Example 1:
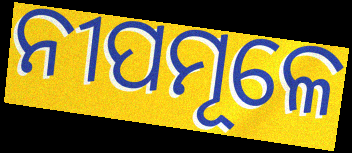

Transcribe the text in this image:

ନୀପମୂଳେ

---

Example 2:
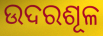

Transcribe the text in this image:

ଉଦରଶୂଳ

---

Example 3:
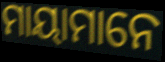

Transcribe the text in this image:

ମାୟାମାନେ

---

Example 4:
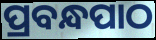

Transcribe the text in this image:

ପ୍ରବନ୍ଧପାଠ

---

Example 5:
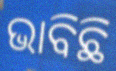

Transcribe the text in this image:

ଭାବିଛି